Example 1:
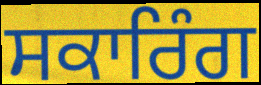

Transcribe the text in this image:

ਸਕਾਰਿੰਗ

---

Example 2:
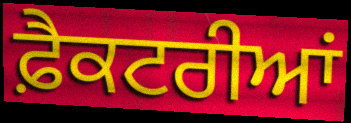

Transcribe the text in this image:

ਫ਼ੈਕਟਰੀਆਂ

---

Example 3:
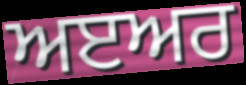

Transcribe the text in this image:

ਅੲਅਰ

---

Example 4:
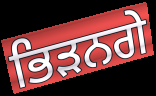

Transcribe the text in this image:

ਭਿੜਨਗੇ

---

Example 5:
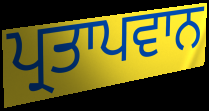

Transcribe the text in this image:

ਪ੍ਰਤਾਪਵਾਨ